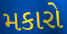
મકારો